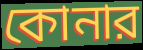
কোনার